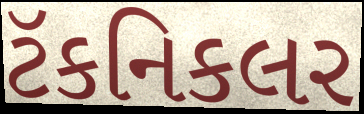
ટૅકનિકલર